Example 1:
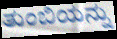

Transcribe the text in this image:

ತುಂಬಿಯನ್ನು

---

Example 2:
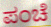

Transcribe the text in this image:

ಪಂಚೆ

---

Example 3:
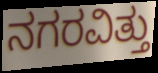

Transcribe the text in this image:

ನಗರವಿತ್ತು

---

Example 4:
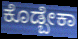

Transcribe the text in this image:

ಕೊಡ್ಬೇಕಾ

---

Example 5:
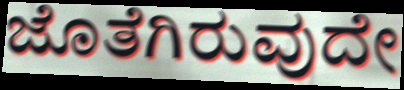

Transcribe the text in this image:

ಜೊತೆಗಿರುವುದೇ